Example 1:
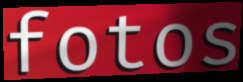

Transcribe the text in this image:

fotos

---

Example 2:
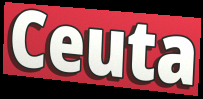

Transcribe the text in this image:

Ceuta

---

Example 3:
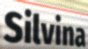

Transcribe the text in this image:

Silvina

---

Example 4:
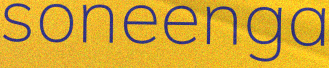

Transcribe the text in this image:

soneenga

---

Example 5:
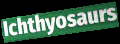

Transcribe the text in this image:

Ichthyosaurs